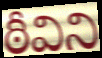
ఠీవిని